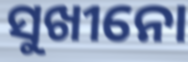
ସୁଖୀନୋ